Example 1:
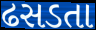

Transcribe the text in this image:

ઢસડતા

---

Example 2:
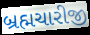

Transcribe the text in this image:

બ્રહ્મચારીજી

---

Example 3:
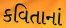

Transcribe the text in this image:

કવિતાનાં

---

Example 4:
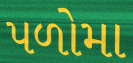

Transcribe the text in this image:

પળોમા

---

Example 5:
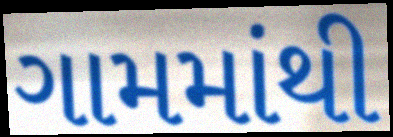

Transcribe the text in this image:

ગામમાંથી